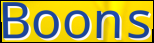
Boons